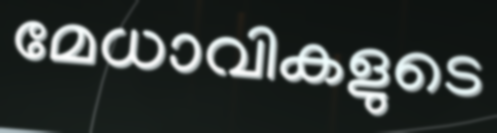
മേധാവികളുടെ